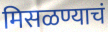
मिसळण्याचं